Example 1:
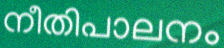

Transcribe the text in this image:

നീതിപാലനം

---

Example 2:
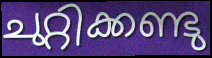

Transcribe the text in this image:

ചുറ്റിക്കണ്ടു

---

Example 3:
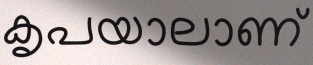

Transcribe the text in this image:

കൃപയാലാണ്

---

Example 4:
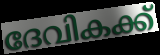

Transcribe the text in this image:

ദേവികക്ക്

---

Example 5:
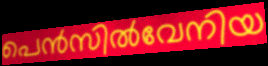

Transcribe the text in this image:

പെൻസിൽവേനിയ